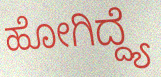
ಹೋಗಿದ್ದ್ಯೆ